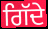
ਗਿੱਦੇ